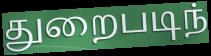
துறைபடிந்